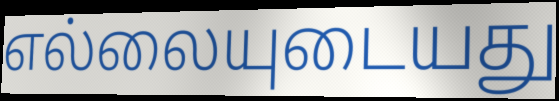
எல்லையுடையது